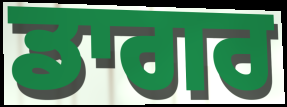
ਡਾਗਰ